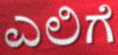
ಎಲಿಗೆ